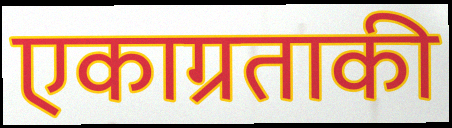
एकाग्रताकी